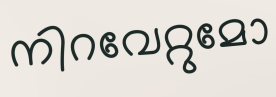
നിറവേറ്റുമോ